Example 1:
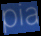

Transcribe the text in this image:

pia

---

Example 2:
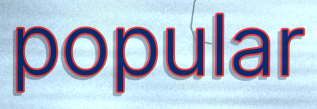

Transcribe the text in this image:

popular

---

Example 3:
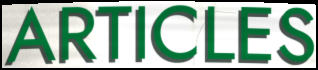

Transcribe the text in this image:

ARTICLES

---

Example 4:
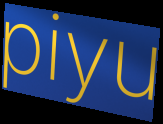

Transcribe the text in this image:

piyu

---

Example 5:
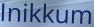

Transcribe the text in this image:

Inikkum